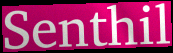
Senthil